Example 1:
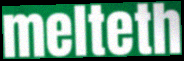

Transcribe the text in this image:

melteth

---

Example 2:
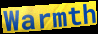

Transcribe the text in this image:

Warmth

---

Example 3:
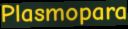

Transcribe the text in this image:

Plasmopara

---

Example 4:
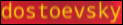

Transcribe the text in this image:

dostoevsky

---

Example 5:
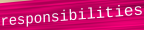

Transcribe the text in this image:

responsibilities